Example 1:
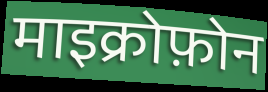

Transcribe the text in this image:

माइक्रोफ़ोन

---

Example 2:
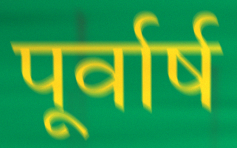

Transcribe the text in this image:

पूर्वार्ष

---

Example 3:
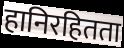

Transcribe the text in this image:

हानिरहितता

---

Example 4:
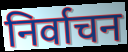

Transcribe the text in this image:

निर्वाचन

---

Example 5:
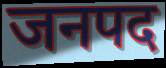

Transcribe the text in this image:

जनपद